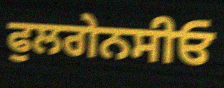
ਫੁਲਗੇਨਸੀਓ